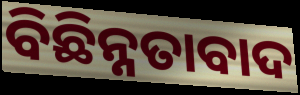
ବିଛିନ୍ନତାବାଦ